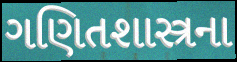
ગણિતશાસ્ત્રના